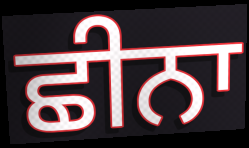
ਛੀਨਾ